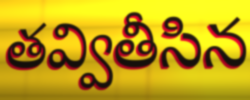
తవ్వితీసిన